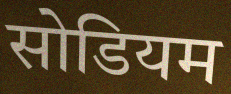
सोडियम